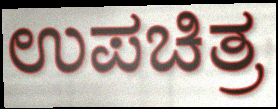
ಉಪಚಿತ್ರ